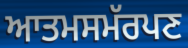
ਆਤਮਸਮੱਰਪਣ